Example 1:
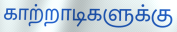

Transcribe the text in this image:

காற்றாடிகளுக்கு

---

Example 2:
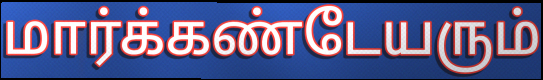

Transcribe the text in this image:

மார்க்கண்டேயரும்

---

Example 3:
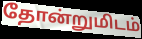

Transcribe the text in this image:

தோன்றுமிடம்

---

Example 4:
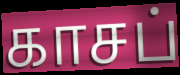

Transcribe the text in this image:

காசப்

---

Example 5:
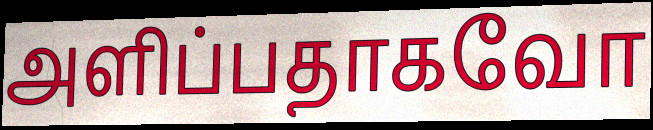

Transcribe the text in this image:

அளிப்பதாகவோ